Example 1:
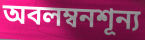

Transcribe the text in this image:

অবলম্বনশূন্য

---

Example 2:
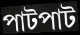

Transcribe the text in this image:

পাটপাট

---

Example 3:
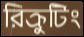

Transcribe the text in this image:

রিক্রুটিং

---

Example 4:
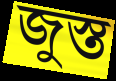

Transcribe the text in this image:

জুস্ত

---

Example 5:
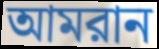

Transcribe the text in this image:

আমরান